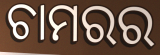
ଚାମରର